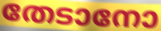
തേടാനോ